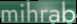
mihrab